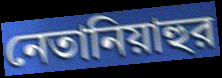
নেতানিয়াহুর